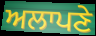
ਅਲਾਪਣੇ